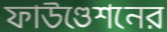
ফাউণ্ডেশনের